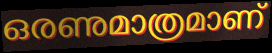
ഒരണുമാത്രമാണ്